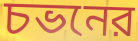
চভনের